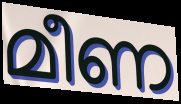
മീണ